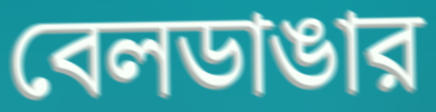
বেলডাঙার